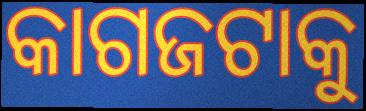
କାଗଜଟାକୁ